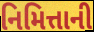
નિમિત્તાની